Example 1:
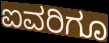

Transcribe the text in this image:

ಐವರಿಗೂ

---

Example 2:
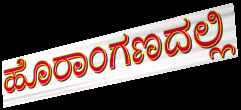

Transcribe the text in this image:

ಹೊರಾಂಗಣದಲ್ಲಿ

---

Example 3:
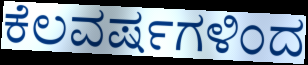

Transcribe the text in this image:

ಕೆಲವರ್ಷಗಳಿಂದ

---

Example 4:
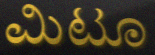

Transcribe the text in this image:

ಮಿಟೂ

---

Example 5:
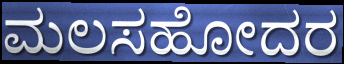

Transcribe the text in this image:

ಮಲಸಹೋದರ